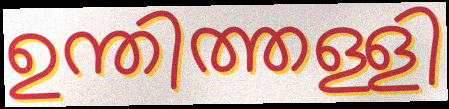
ഉന്തിത്തള്ളി